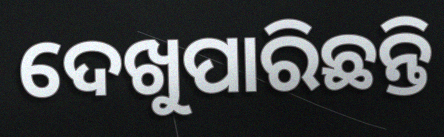
ଦେଖୁପାରିଛନ୍ତି